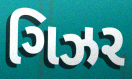
ગિઝર